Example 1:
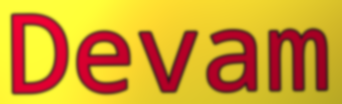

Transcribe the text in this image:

Devam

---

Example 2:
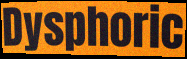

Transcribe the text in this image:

Dysphoric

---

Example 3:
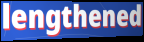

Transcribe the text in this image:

lengthened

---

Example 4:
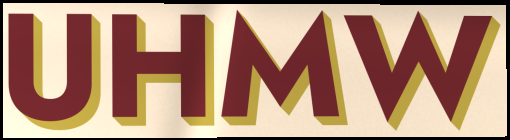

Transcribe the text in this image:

UHMW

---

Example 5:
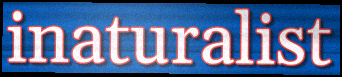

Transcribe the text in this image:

inaturalist